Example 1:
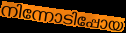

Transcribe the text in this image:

നിന്നോടിപ്പോയ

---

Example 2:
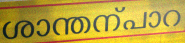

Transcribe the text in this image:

ശാന്തന്പാറ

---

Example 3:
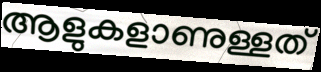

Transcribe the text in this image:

ആളുകളാണുള്ളത്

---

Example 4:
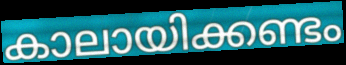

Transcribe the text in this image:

കാലായിക്കണ്ടം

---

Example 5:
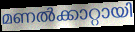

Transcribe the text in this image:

മണൽക്കാറ്റായി